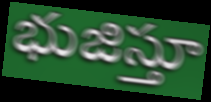
భుజిస్తూ